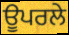
ਊਪਰਲੇ